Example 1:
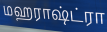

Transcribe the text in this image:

மஹராஷ்ட்ரா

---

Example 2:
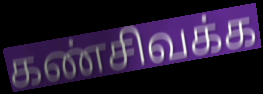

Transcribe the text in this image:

கண்சிவக்க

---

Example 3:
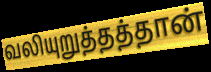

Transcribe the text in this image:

வலியுறுத்தத்தான்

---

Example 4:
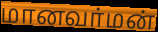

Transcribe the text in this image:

மானவர்மன்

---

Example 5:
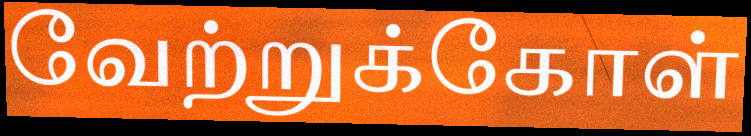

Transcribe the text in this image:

வேற்றுக்கோள்